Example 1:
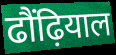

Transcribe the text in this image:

ढौंढ़ियाल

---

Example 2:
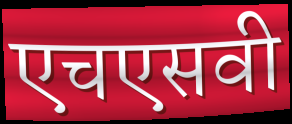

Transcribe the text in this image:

एचएसवी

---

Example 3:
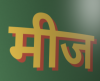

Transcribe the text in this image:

मीज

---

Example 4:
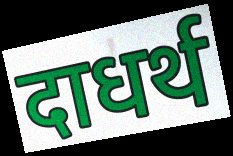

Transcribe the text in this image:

दाधर्थ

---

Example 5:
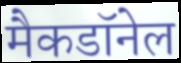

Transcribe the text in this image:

मैकडॉनेल